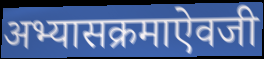
अभ्यासक्रमाऐवजी